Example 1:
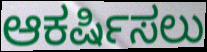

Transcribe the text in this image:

ಆಕರ್ಷಿಸಲು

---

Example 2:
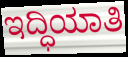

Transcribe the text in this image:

ಇದ್ಧಿಯಾತಿ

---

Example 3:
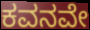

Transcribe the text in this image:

ಕವನವೇ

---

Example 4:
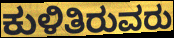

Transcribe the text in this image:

ಕುಳಿತಿರುವರು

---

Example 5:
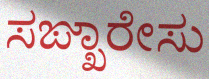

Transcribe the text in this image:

ಸಙ್ಖಾರೇಸು